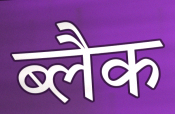
ब्लैक